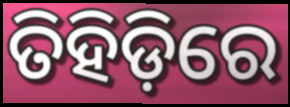
ତିହିଡ଼ିରେ